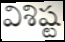
విశిష్ట